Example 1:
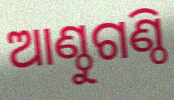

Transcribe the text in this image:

ଆଣ୍ଠୁଗଣ୍ଠି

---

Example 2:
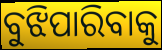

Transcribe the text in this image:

ବୁଝିପାରିବାକୁ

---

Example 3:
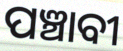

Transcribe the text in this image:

ପଞ୍ଚାବୀ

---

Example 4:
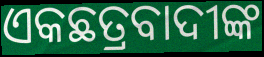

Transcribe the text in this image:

ଏକଛତ୍ରବାଦୀଙ୍କ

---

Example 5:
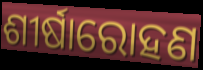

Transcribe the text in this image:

ଶୀର୍ଷାରୋହଣ